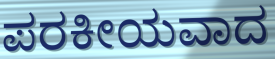
ಪರಕೀಯವಾದ